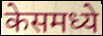
केसमध्ये